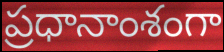
ప్రధానాంశంగా